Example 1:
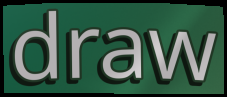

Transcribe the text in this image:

draw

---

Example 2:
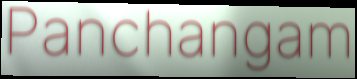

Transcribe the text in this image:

Panchangam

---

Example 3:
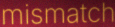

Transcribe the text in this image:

mismatch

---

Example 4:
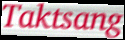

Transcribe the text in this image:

Taktsang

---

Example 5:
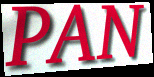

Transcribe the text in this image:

PAN